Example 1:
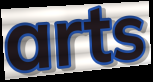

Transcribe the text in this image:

arts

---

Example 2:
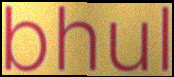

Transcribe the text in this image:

bhul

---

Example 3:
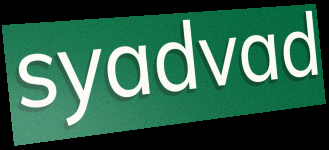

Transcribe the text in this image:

syadvad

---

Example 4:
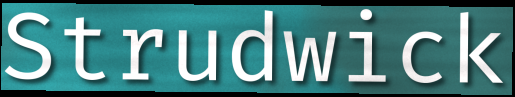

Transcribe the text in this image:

Strudwick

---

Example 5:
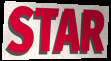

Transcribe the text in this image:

STAR